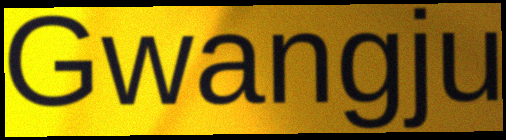
Gwangju